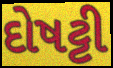
દોષટ્ટી